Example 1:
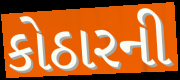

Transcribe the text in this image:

કોઠારની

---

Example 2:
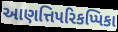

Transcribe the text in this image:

આણત્તિપરિકપ્પિકા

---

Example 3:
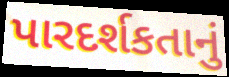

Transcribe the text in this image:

પારદર્શકતાનું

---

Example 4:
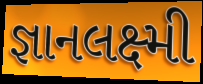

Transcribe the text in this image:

જ્ઞાનલક્ષ્મી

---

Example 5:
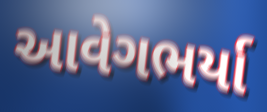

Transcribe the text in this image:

આવેગભર્યા